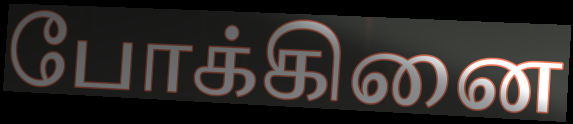
போக்கினை